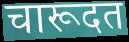
चारूदत